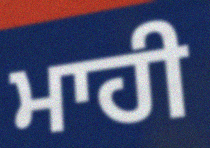
ਮਾਹੀ